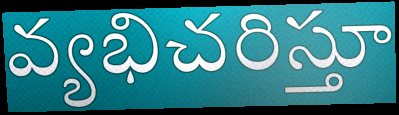
వ్యభిచరిస్తూ